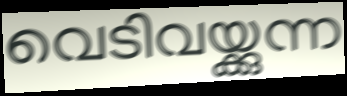
വെടിവയ്ക്കുന്ന